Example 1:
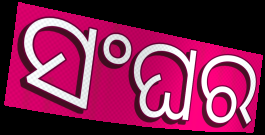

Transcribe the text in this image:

ସଂଘର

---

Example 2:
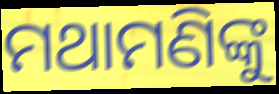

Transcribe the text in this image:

ମଥାମଣିଙ୍କୁ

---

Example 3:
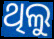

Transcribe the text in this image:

ଥିଲୁ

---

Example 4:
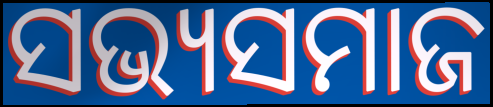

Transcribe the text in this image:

ସଭ୍ୟସମାଜ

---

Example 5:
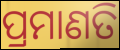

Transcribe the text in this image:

ପ୍ରମାଣତି